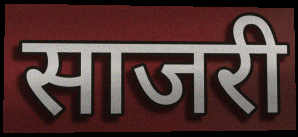
साजरी